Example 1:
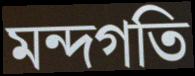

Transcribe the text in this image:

মন্দগতি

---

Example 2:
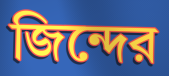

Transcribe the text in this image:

জিন্দের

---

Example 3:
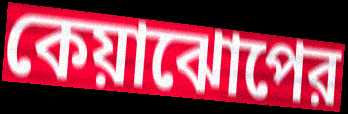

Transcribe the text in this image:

কেয়াঝোপের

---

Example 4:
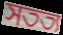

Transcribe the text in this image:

সতত্য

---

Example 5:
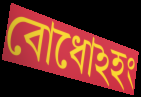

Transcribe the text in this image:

বোধোঽহং